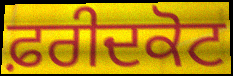
ਫ਼ਰੀਦਕੋਟ